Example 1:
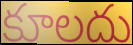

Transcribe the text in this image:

కూలదు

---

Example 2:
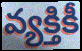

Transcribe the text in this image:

వ్యక్తికీ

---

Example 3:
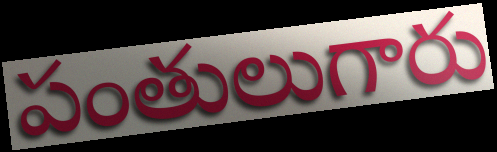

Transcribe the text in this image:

పంతులుగారు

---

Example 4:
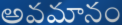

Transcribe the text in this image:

అవమానం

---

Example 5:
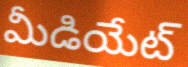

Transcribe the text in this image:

మీడియేట్